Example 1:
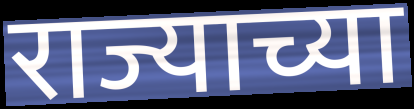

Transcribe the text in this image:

राज्याच्या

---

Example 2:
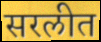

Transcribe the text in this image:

सरलीत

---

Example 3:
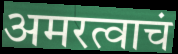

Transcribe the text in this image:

अमरत्वाचं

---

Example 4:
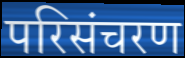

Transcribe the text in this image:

परिसंचरण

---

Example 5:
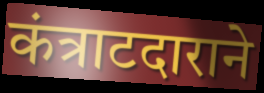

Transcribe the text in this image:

कंत्राटदाराने